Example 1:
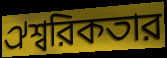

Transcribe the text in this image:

ঐশ্বরিকতার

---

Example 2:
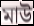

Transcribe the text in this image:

মাউ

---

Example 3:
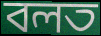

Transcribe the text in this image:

বলত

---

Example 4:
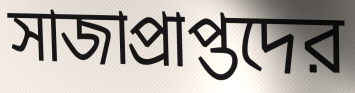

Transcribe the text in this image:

সাজাপ্রাপ্তদের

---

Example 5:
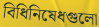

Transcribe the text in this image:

বিধিনিষেধগুলো